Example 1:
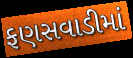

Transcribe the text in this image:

ફણસવાડીમાં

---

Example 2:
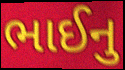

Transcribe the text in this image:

ભાઈનુ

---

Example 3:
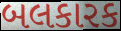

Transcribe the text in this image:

બલકારક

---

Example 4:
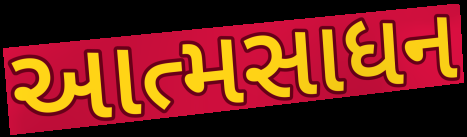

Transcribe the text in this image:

આત્મસાધન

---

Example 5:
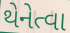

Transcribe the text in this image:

થેનેત્વા